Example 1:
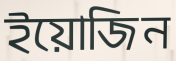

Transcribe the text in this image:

ইয়োজিন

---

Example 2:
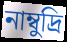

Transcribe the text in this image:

নাম্বুদ্রি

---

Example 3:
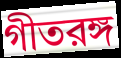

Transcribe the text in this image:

গীতরঙ্গ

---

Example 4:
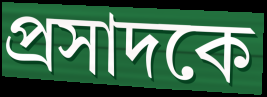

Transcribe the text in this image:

প্রসাদকে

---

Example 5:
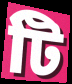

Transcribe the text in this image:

টি